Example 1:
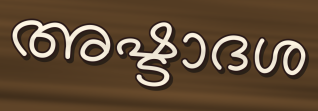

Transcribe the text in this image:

അഷ്ടാദശ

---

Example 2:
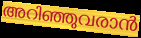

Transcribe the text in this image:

അറിഞ്ഞുവരാൻ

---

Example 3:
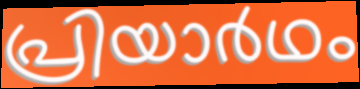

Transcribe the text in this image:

പ്രിയാർഥം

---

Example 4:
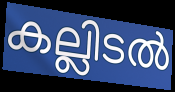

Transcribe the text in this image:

കല്ലിടൽ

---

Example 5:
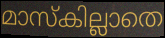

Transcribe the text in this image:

മാസ്കില്ലാതെ